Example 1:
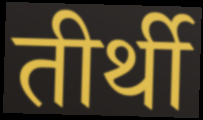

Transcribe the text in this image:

तीर्थी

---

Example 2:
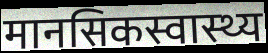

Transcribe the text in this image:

मानसिकस्वास्थ्य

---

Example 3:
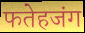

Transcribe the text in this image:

फतेहजंग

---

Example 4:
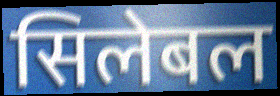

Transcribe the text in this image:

सिलेबल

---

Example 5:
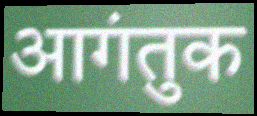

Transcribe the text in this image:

आगंतुक